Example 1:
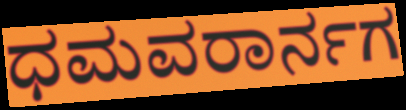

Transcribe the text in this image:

ಧಮವರಾರ್ನಗ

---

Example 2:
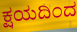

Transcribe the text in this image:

ಕ್ಷಯದಿಂದ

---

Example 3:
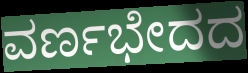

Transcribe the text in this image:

ವರ್ಣಭೇದದ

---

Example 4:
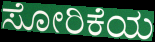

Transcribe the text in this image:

ಸೋರಿಕೆಯ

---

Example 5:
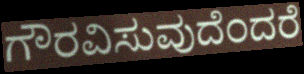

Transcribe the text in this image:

ಗೌರವಿಸುವುದೆಂದರೆ